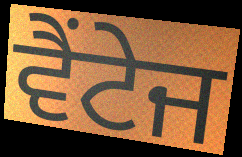
ਵੈਂਟੇਜ